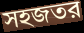
সহজতর